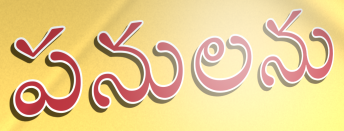
పనులను